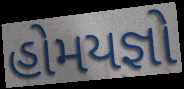
હોમયજ્ઞો